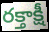
రక్తాక్షీ